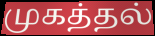
முகத்தல்